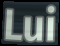
Lui